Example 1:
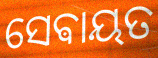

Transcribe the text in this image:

ସେଵାୟତ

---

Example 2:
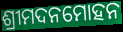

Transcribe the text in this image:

ଶ୍ରୀମଦନମୋହନ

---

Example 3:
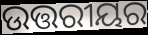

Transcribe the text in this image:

ଉତ୍ତରୀୟର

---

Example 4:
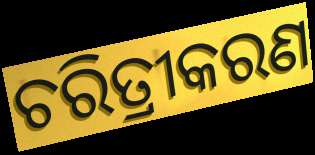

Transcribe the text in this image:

ଚରିତ୍ରୀକରଣ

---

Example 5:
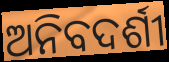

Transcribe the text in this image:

ଅନିବଦର୍ଶୀ